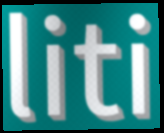
liti